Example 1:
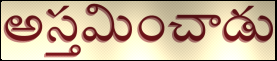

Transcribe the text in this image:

అస్తమించాడు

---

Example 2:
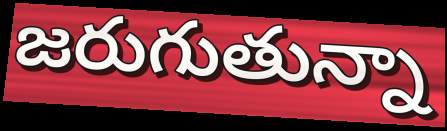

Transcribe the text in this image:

జరుగుతున్నా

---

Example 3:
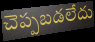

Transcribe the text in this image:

చెప్పబడలేదు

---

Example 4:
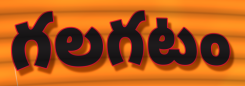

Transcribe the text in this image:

గలగటం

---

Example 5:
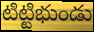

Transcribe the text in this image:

టిట్టిభుండు